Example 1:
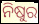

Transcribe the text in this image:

ନିଷୁର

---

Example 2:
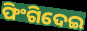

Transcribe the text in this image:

ଫିଂଗିଦେଇ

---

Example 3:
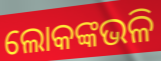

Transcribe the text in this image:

ଲୋକଙ୍କଭଳି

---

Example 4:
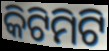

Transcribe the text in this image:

କିଟିମିଟି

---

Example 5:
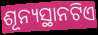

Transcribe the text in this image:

ଶୂନ୍ୟସ୍ଥାନଟିଏ